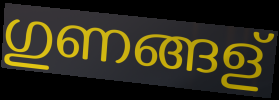
ഗുണങ്ങള്